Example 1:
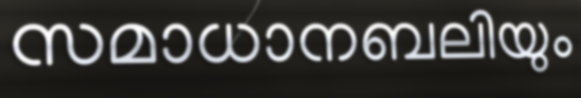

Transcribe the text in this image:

സമാധാനബലിയും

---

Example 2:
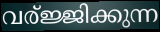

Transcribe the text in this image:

വര്ജ്ജിക്കുന്ന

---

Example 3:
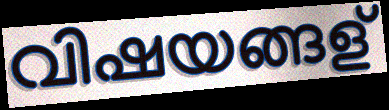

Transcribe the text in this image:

വിഷയങ്ങള്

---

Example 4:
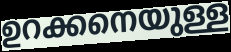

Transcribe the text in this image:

ഉറക്കനെയുള്ള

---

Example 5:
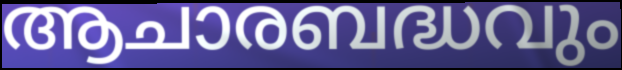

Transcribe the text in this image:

ആചാരബദ്ധവും